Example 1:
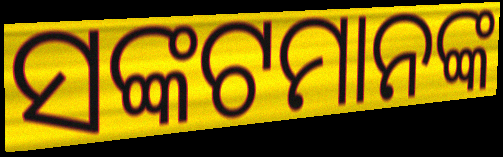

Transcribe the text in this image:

ସଙ୍କଟମାନଙ୍କ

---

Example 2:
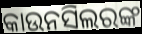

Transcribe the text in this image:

କାଉନସିଲରଙ୍କ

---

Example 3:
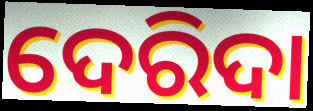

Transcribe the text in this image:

ଦେରିଦା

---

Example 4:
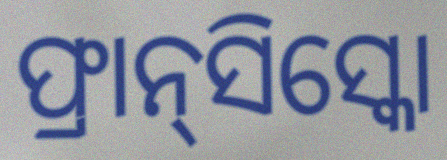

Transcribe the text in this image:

ଫ୍ରାନ୍‌ସିସ୍କୋ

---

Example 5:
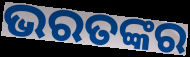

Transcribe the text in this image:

ଭରତଙ୍କର